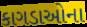
કાગડાઓના